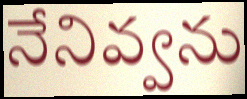
నేనివ్వను